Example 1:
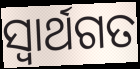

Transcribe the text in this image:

ସ୍ୱାର୍ଥଗତ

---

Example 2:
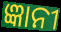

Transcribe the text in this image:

ଜ୍ଞାନୀ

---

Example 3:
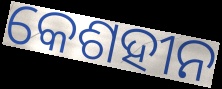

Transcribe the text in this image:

କେଶହୀନ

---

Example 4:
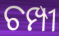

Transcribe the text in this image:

ଚମ୍ପୀ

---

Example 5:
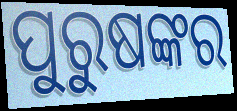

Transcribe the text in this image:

ପୁରୁଷଙ୍କର